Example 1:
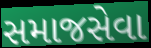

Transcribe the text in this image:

સમાજસેવા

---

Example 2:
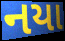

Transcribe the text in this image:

નયા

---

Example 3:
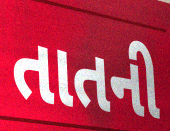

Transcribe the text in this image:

તાતની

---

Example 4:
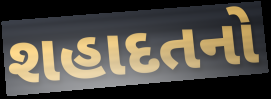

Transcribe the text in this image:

શહાદતનો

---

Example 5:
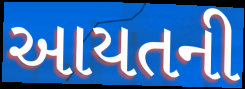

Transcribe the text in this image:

આયતની